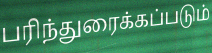
பரிந்துரைக்கப்படும்